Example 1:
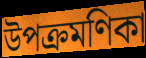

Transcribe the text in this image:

উপক্রমণিকা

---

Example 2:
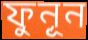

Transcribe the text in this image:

ফুনূন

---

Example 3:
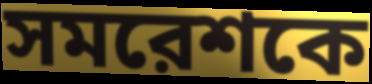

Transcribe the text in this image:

সমরেশকে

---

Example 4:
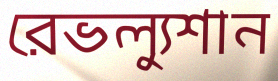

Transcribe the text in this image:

রেভল্যুশান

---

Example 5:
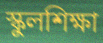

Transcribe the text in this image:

স্কুলশিক্ষা